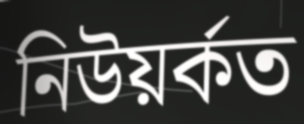
নিউয়ৰ্কত